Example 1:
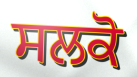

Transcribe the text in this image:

ਸਲਕੋ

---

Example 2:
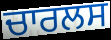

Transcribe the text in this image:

ਚਾਰਲਸ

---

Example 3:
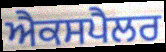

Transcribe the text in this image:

ਐਕਸਪੈਲਰ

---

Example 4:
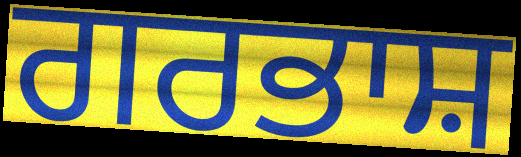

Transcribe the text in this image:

ਗਰਭਾਸ਼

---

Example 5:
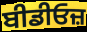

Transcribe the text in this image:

ਬੀਡੀਓਜ਼